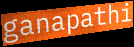
ganapathi